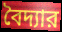
বৈদ্যার